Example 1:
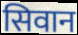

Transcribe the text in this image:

सिवान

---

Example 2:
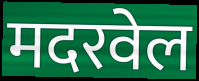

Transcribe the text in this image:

मदरवेल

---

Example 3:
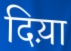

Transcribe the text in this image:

दिय़ा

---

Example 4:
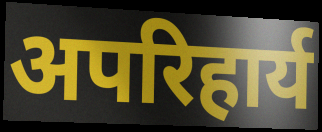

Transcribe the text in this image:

अपरिहार्य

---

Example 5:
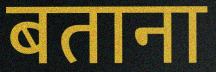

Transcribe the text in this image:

बताना